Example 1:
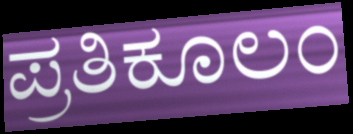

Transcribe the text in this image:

ಪ್ರತಿಕೂಲಂ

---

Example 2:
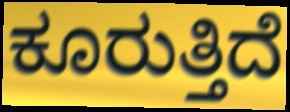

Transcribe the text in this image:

ಕೂರುತ್ತಿದೆ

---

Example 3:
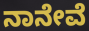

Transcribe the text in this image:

ನಾನೇವೆ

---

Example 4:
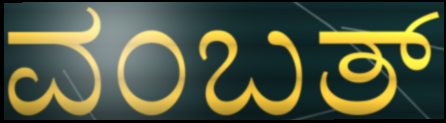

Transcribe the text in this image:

ವಂಬತ್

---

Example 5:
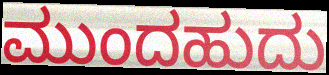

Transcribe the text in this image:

ಮುಂದಹುದು